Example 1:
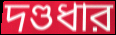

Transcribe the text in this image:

দণ্ডধার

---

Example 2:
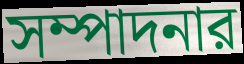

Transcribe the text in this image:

সম্পাদনার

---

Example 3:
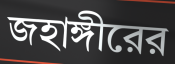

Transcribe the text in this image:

জহাঙ্গীরের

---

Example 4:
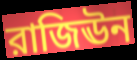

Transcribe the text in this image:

রাজিঊন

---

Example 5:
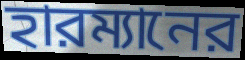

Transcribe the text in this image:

হারম্যানের